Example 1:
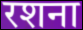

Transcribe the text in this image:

रशना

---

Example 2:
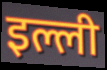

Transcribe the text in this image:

इल्ली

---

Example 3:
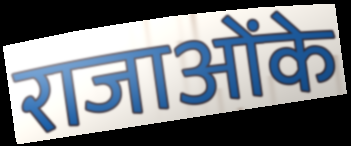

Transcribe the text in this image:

राजाओंके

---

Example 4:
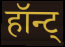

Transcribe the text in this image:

हॉन्ट्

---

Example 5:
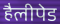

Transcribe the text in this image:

हैलीपेड